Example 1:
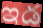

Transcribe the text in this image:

ఇడ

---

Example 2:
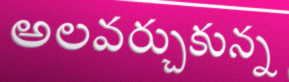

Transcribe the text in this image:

అలవర్చుకున్న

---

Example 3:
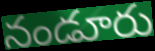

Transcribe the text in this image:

నండూరు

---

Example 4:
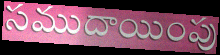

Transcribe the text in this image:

సముదాయింపు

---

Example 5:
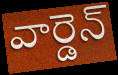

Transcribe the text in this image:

వార్డెన్